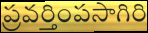
ప్రవర్తింపసాగిరి